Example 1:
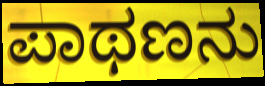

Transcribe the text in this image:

ಪಾಥಣನು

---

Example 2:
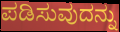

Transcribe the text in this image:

ಪಡಿಸುವುದನ್ನು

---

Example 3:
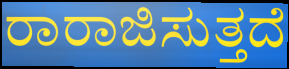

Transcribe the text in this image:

ರಾರಾಜಿಸುತ್ತದೆ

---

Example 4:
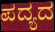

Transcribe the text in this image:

ಪದ್ಯದ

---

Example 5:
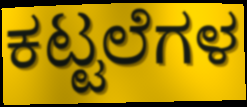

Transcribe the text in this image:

ಕಟ್ಟಲೆಗಳ